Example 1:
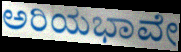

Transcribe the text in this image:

ಅರಿಯಭಾವೇ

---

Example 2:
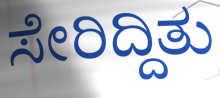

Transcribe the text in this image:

ಸೇರಿದ್ದಿತು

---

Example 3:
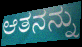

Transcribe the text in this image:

ಆತನನ್ನು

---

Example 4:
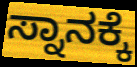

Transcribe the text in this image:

ಸ್ನಾನಕ್ಕೆ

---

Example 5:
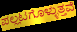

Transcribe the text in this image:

ಪಲ್ಲಟಗೊಳ್ಳುತ್ತವೆ